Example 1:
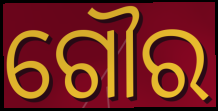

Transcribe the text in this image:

ଗୌର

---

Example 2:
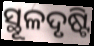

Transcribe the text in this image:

ସ୍ଥୂଳଦୃଷ୍ଟି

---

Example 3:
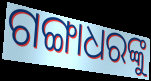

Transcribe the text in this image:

ଗଙ୍ଗାଧରଙ୍କୁ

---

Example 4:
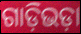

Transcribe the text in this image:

ଗାଡ଼ିଭଡ଼ା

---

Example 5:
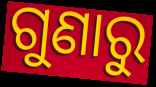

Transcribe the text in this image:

ଗୁଣାରୁ